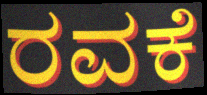
ರವಕೆ